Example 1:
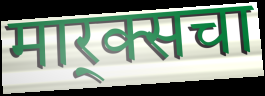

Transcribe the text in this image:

मार्क्सचा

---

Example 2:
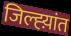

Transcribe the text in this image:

जिल्ह्य़ांत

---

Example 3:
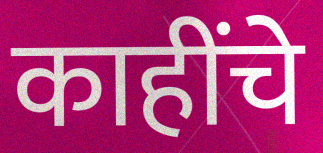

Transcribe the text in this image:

काहींचे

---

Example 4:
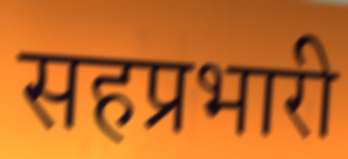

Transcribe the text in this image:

सहप्रभारी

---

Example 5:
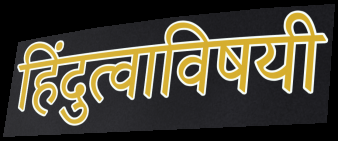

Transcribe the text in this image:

हिंदुत्वाविषयी